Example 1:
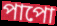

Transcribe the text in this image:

পাপো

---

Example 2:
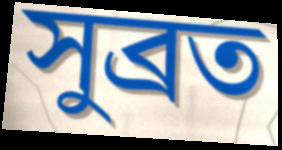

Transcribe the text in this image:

সুব্রত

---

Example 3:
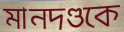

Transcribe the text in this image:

মানদণ্ডকে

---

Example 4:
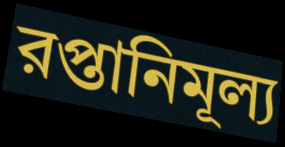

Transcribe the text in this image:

রপ্তানিমূল্য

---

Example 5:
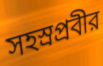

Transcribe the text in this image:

সহস্রপ্রবীর